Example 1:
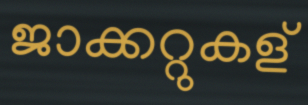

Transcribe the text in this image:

ജാക്കറ്റുകള്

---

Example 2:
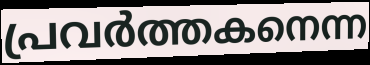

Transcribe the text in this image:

പ്രവർത്തകനെന്ന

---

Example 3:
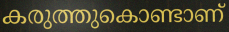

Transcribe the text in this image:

കരുത്തുകൊണ്ടാണ്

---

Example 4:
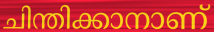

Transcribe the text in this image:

ചിന്തിക്കാനാണ്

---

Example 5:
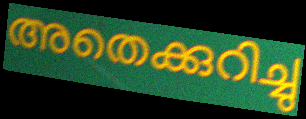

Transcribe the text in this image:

അതെക്കുറിച്ചു